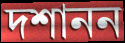
দশানন